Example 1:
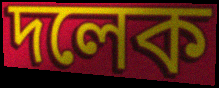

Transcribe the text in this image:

দলেক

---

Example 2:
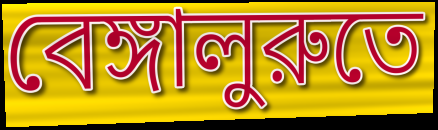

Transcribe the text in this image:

বেঙ্গালুরুতে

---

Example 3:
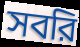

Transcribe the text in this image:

সবরি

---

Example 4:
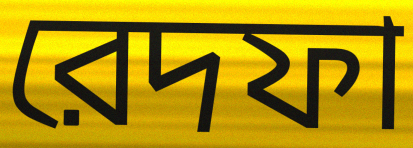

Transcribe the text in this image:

রেদফা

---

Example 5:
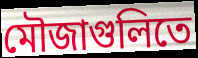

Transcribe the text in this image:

মৌজাগুলিতে